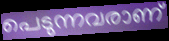
പെടുന്നവരാണ്